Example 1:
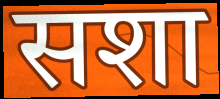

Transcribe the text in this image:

सशा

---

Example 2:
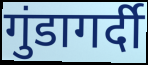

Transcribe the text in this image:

गुंडागर्दी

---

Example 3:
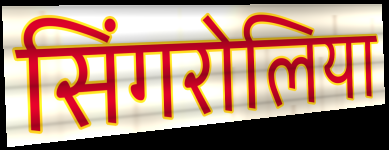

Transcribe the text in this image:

सिंगरोलिया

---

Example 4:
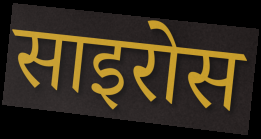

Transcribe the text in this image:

साइरोस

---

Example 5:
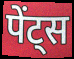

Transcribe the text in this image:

पेंट्स